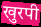
खुरपी